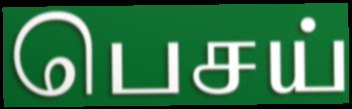
பெசய்